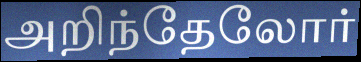
அறிந்தேலோர்